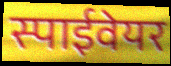
स्पाईवेयर